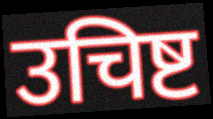
उचिष्ट